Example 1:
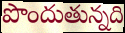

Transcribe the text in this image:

పొందుతున్నది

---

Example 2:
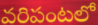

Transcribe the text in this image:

వరిపంటలో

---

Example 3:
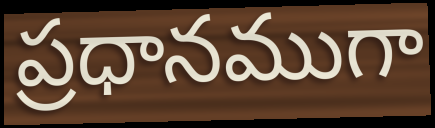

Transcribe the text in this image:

ప్రధానముగా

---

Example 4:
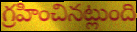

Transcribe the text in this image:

గ్రహించినట్లుంది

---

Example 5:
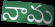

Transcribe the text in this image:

నామ